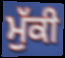
ਮੁੱਕੀ